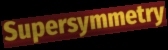
Supersymmetry